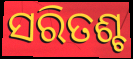
ସରିତଶ୍ଚ